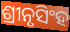
ଶ୍ରୀନୃସିଂହ